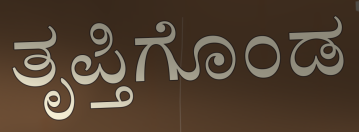
ತೃಪ್ತಿಗೊಂಡ